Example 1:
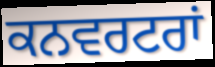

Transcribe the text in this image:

ਕਨਵਰਟਰਾਂ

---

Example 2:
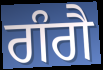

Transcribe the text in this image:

ਗੰਗੈ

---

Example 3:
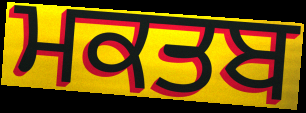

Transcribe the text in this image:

ਮਕਤਬ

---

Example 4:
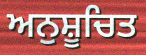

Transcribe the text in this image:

ਅਨੁਸ਼ੂਚਿਤ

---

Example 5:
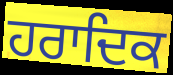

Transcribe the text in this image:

ਹਰਾਦਿਕ